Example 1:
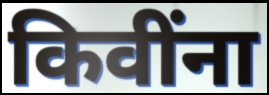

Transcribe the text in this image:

किवींना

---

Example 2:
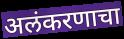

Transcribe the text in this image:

अलंकरणाचा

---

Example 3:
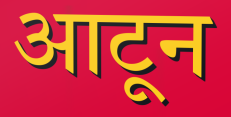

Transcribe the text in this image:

आटून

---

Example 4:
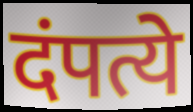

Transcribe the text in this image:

दंपत्ये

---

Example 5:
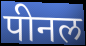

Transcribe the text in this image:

पीनल